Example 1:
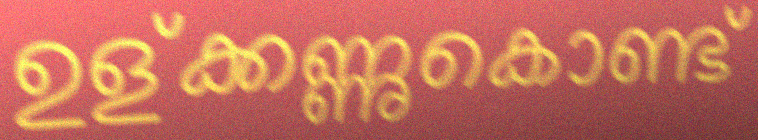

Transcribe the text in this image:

ഉള്ക്കണ്ണുകൊണ്ട്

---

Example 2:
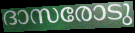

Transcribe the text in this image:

ദാസരോടു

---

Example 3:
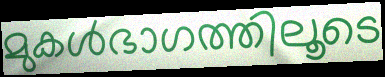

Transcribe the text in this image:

മുകൾഭാഗത്തിലൂടെ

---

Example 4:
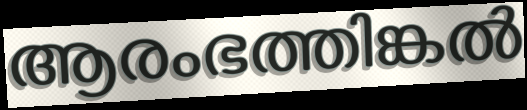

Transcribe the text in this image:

ആരംഭത്തിങ്കൽ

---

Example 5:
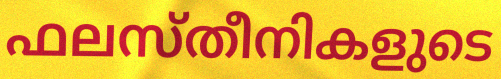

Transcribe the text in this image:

ഫലസ്തീനികളുടെ